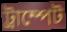
ট্ৰাম্পেট